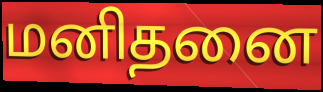
மனிதனை